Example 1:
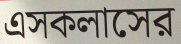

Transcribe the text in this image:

এসকলাসের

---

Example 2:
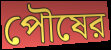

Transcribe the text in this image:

পৌষের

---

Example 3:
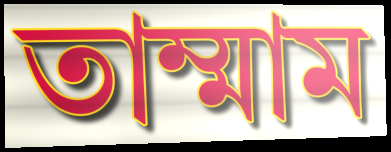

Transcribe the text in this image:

তাম্মাম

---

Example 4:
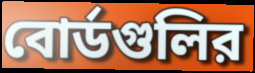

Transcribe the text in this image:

বোর্ডগুলির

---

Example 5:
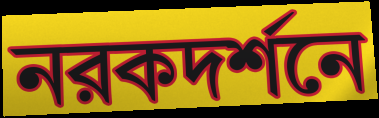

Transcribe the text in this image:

নরকদর্শনে